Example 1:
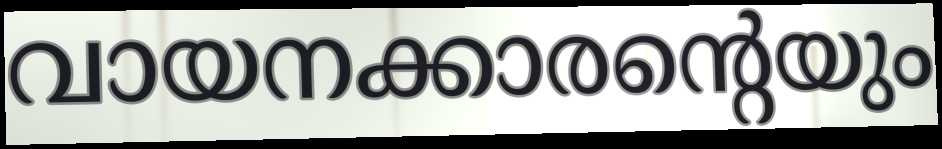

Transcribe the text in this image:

വായനക്കാരന്റെയും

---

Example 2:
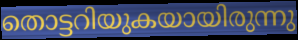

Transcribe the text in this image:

തൊട്ടറിയുകയായിരുന്നു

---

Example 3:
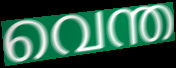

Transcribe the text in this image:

വെന്ത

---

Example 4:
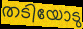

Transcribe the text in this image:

തടിയോടു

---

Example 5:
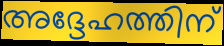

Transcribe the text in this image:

അദ്ദേഹത്തിന്